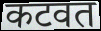
कटवत